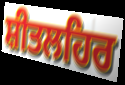
ਸ਼ੀਤਲਹਿਰ